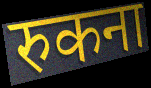
रुकना